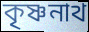
কৃষ্ণনাথ